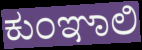
ಕುಂಞಾಲಿ